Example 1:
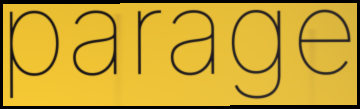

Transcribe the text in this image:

parage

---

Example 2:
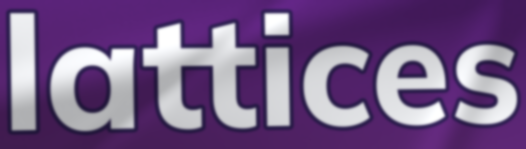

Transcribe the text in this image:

lattices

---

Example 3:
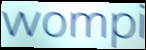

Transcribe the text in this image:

wompi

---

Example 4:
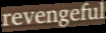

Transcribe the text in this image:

revengeful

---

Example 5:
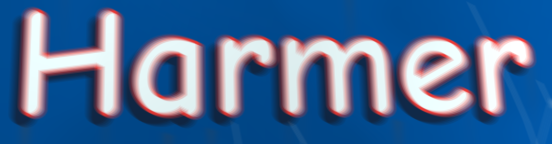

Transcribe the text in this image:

Harmer